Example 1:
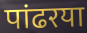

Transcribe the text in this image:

पांढरया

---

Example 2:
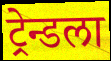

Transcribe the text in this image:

ट्रेन्डला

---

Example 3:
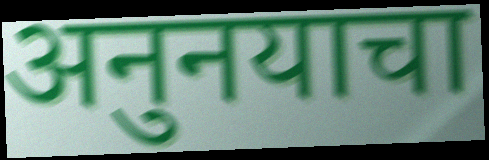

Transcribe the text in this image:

अनुनयाचा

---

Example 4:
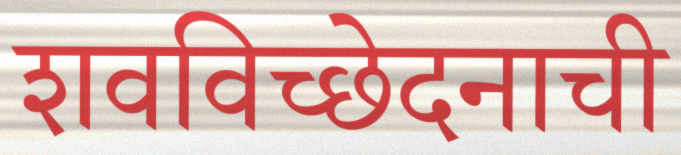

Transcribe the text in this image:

शवविच्छेदनाची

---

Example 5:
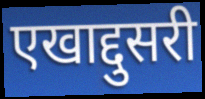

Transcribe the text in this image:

एखाद्दुसरी